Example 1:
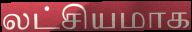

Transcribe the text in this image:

லட்சியமாக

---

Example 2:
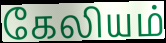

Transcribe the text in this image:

கேலியம்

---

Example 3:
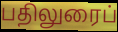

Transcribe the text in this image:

பதிலுரைப்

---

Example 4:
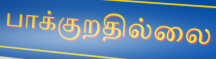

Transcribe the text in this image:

பாக்குறதில்லை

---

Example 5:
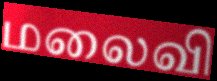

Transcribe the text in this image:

மலைவி